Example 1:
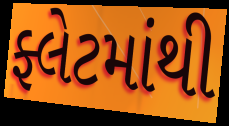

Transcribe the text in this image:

ફ્લેટમાંથી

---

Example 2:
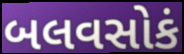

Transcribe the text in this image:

બલવસોકં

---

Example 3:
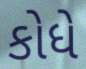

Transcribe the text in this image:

કોધે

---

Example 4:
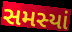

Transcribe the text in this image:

સમસ્યાં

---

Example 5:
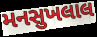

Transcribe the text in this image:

મનસુખલાલ